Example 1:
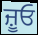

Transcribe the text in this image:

ਜ਼ੂਓ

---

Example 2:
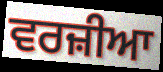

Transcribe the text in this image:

ਵਰਜ਼ੀਆ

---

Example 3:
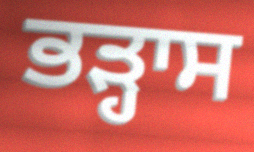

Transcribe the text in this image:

ਭੜ੍ਹਾਸ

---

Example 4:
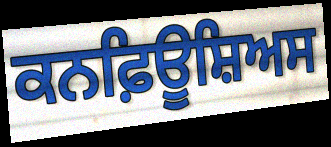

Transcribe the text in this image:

ਕਨਫ਼ਿਊਸ਼ਿਅਸ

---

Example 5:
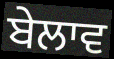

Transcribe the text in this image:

ਬੇਲਾਵ